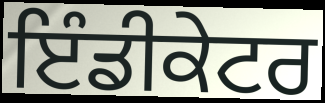
ਇੰਡੀਕੇਟਰ